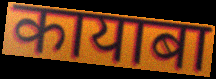
कायाबा